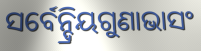
ସର୍ବେନ୍ଦ୍ରିୟଗୁଣାଭାସଂ